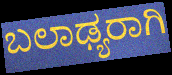
ಬಲಾಢ್ಯರಾಗಿ